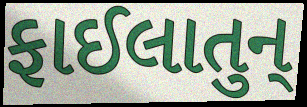
ફાઈલાતુન્